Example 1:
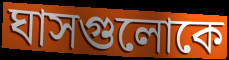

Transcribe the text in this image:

ঘাসগুলোকে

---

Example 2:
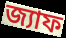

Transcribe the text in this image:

জ্যাফ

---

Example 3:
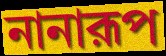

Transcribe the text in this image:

নানারূপ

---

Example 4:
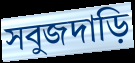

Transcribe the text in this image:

সবুজদাড়ি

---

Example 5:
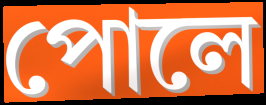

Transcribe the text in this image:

পোলে